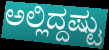
ಅಲ್ಲಿದ್ದಷ್ಟು